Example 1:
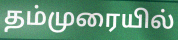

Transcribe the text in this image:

தம்முரையில்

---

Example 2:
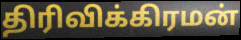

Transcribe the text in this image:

திரிவிக்கிரமன்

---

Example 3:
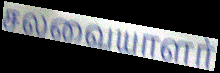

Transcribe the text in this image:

சலவையாளர்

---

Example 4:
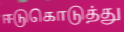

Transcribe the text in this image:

ஈடுகொடுத்து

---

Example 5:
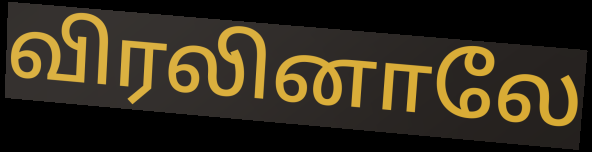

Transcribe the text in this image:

விரலினாலே